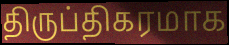
திருப்திகரமாக